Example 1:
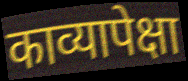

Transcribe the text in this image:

काव्यापेक्षा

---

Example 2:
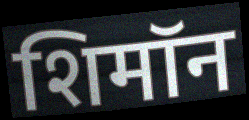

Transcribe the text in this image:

शिमॉन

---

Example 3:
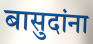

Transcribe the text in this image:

बासुदांना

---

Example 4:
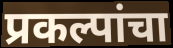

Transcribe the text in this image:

प्रकल्पांचा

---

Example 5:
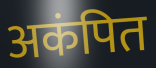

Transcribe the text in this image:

अकंपित